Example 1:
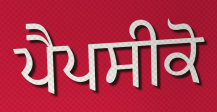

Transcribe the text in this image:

ਪੈਪਸੀਕੋ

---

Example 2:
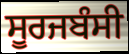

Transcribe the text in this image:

ਸੂਰਜਬੰਸੀ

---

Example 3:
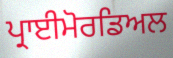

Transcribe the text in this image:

ਪ੍ਰਾਈਮੋਰਡਿਅਲ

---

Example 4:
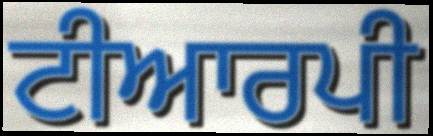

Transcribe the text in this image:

ਟੀਆਰਪੀ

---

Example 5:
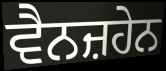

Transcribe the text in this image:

ਵੈਨਜ਼ਹੇਨ